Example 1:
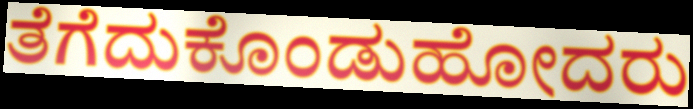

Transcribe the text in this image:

ತೆಗೆದುಕೊಂಡುಹೋದರು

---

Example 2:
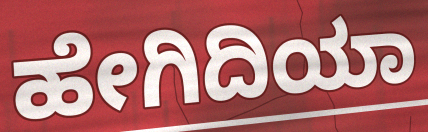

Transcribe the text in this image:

ಹೇಗಿದಿಯಾ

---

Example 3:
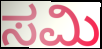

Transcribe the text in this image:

ಸಮಿ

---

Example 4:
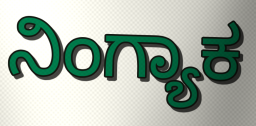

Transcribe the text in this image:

ನಿಂಗ್ಯಾಕ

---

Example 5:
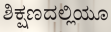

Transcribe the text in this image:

ಶಿಕ್ಷಣದಲ್ಲಿಯೂ